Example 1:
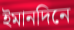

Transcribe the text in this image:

ইমানদিনে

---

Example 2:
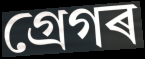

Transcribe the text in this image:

গ্ৰেগৰ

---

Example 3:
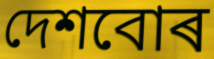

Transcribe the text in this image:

দেশবোৰ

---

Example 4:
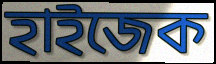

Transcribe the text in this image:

হাইজেক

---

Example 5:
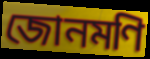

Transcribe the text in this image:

জোনমণি